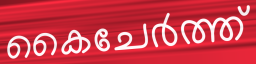
കൈചേർത്ത്